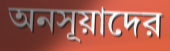
অনসূয়াদের